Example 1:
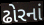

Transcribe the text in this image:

ઢોરનાં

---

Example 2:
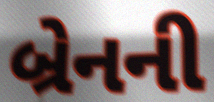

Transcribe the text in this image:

બ્રેનની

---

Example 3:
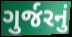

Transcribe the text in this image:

ગુર્જરનું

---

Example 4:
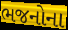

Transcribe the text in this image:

ભજનોના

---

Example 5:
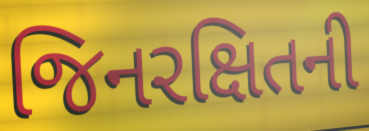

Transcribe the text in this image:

જિનરક્ષિતની